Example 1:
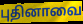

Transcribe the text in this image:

புதினாவை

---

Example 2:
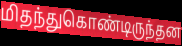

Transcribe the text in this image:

மிதந்துகொண்டிருந்தன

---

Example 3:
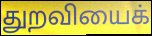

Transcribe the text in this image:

துறவியைக்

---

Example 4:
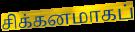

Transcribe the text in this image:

சிக்கனமாகப்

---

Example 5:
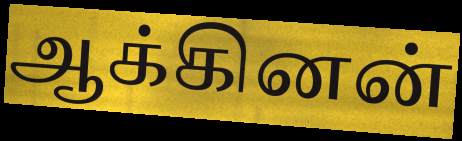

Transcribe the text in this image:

ஆக்கினன்